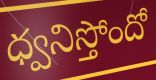
ధ్వనిస్తోందో